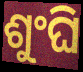
ଶୁଂଘି